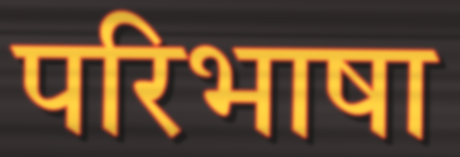
परिभाषा